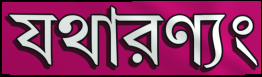
যথারণ্যং